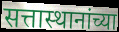
सत्तास्थानांच्या